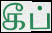
கீப்